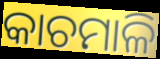
କାଚମାଳି